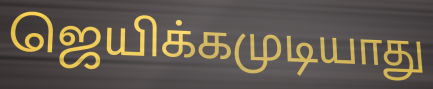
ஜெயிக்கமுடியாது